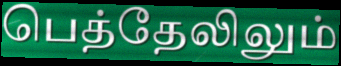
பெத்தேலிலும்